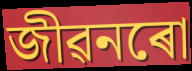
জীৱনৰো